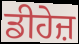
ਡੀਹੇਜ਼